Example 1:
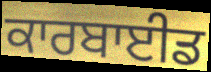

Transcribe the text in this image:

ਕਾਰਬਾਈਡ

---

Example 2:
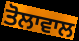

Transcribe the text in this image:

ਤੋਲਾਵਾਲ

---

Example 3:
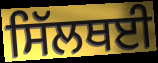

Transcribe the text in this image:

ਸਿੱਲਥਈ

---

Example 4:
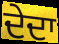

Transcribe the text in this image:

ਦੇਦਾ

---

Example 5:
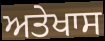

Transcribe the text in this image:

ਅਤੇਖਾਸ